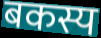
बकस्य